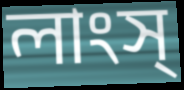
লাংস্